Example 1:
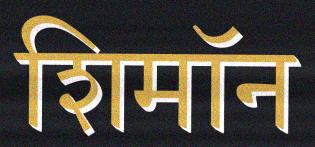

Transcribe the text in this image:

शिमॉन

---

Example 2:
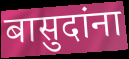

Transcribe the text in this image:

बासुदांना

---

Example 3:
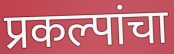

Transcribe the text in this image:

प्रकल्पांचा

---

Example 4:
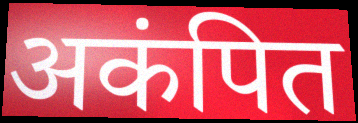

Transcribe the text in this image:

अकंपित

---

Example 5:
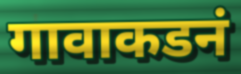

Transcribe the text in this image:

गावाकडनं